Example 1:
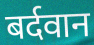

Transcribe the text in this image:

बर्दवान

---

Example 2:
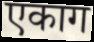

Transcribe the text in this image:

एकाग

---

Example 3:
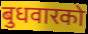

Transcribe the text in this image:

बुधवारको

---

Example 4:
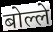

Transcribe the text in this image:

बोल्ले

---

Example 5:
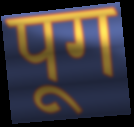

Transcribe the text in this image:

पूग